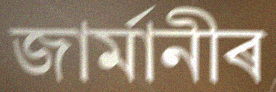
জাৰ্মানীৰ